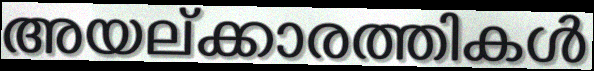
അയല്ക്കാരത്തികൾ